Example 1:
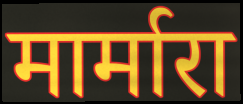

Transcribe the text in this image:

मार्मारा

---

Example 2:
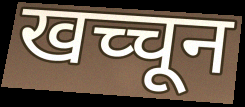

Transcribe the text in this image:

खच्चून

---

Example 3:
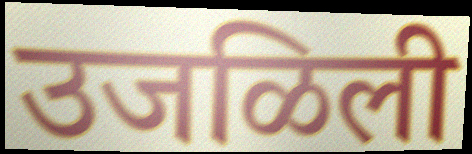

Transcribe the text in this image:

उजळिली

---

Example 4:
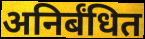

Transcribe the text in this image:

अनिर्बंधित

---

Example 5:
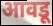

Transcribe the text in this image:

आवडू